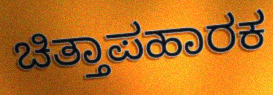
ಚಿತ್ತಾಪಹಾರಕ